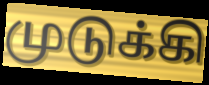
முடுக்கி